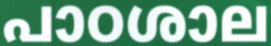
പാഠശാല